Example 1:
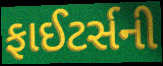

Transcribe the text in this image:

ફાઈટર્સની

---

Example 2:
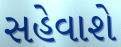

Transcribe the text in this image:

સહેવાશે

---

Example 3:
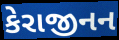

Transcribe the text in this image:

કેરાજીનન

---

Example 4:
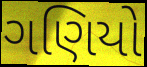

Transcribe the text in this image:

ગણિયો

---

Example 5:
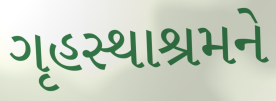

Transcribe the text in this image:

ગૃહસ્થાશ્રમને